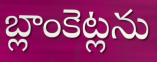
బ్లాంకెట్లను